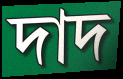
দাদ